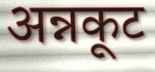
अन्नकूट